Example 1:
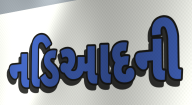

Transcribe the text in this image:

નડિઆદની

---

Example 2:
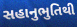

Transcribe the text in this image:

સહાનુભુતિથી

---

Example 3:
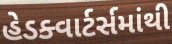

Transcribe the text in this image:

હેડક્વાર્ટર્સમાંથી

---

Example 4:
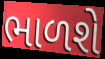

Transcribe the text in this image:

ભાળશે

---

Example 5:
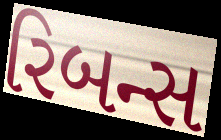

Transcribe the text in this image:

રિબન્સ